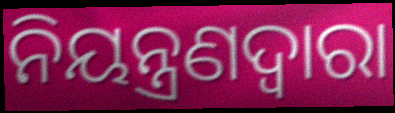
ନିୟନ୍ତ୍ରଣଦ୍ବାରା